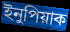
ইনুপিয়াক